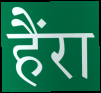
हैंरा